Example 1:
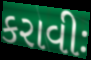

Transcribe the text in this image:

કરાવીઃ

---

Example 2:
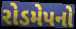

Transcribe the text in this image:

રોડમેપનો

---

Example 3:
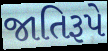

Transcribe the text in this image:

જાતિરૂપે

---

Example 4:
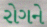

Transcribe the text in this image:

રોગને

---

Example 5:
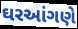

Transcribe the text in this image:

ઘરઆંગણે